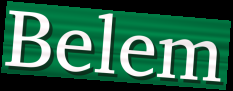
Belem